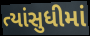
ત્યાંસુધીમાં